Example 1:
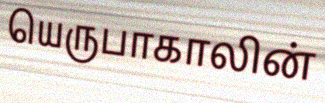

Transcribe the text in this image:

யெருபாகாலின்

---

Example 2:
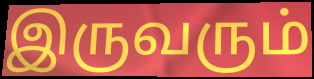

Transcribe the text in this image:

இருவரும்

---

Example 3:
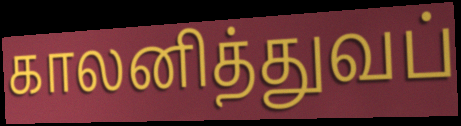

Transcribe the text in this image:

காலனித்துவப்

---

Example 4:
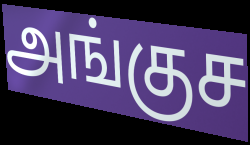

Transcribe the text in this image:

அங்குச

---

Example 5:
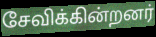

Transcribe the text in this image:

சேவிக்கின்றனர்